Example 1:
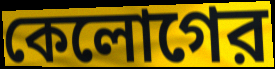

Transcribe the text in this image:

কেলোগের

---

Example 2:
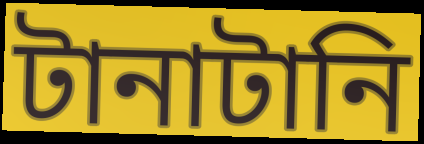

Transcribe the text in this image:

টানাটানি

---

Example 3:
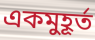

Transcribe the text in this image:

একমুহূর্ত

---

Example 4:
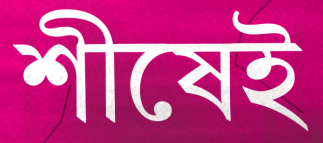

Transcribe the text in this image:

শীষেই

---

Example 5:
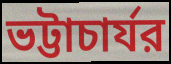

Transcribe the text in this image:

ভট্টাচার্যর